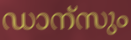
ഡാന്സും